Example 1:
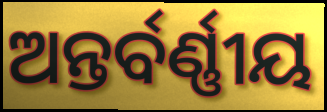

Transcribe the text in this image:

ଅନ୍ତର୍ବର୍ଣ୍ଣୀୟ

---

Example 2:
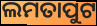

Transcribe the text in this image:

ଲମତାପୁଟ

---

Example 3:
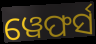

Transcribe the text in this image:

ୱେଫର୍ସ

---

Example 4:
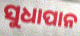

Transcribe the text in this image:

ସୁଧାପାନ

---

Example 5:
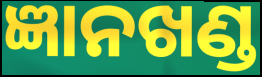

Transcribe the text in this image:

ଜ୍ଞାନଖଣ୍ଡ